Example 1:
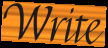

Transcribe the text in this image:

Write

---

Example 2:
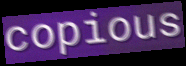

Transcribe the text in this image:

copious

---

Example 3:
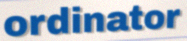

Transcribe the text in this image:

ordinator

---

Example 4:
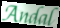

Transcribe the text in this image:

Andal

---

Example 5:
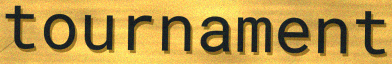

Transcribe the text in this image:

tournament